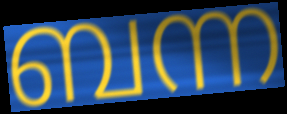
ബന്ന